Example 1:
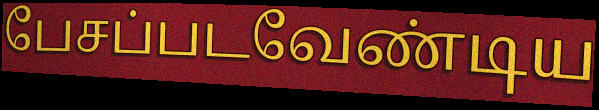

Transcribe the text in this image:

பேசப்படவேண்டிய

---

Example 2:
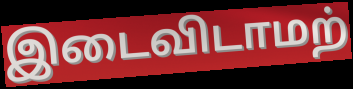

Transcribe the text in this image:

இடைவிடாமற்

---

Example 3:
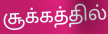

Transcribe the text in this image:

சூக்கத்தில்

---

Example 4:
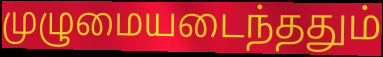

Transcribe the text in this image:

முழுமையடைந்ததும்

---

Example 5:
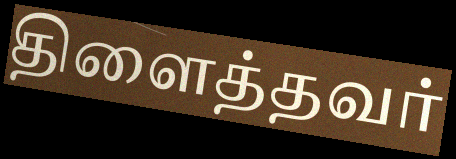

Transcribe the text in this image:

திளைத்தவர்